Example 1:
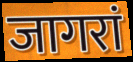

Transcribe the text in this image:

जागरां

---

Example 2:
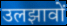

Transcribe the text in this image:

उलझावों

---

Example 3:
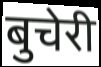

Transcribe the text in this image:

बुचेरी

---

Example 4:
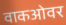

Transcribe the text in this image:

वाकओवर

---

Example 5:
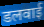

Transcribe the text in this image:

डलवाई